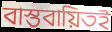
বাস্তবায়িতই